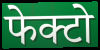
फेक्टो